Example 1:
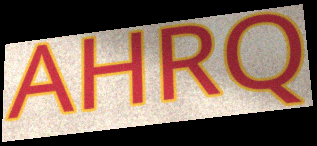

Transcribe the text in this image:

AHRQ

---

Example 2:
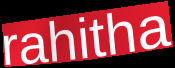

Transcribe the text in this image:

rahitha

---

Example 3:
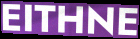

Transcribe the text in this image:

EITHNE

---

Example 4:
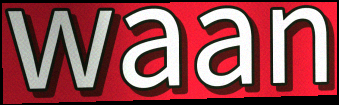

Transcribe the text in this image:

waan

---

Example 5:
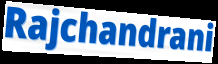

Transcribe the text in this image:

Rajchandrani